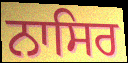
ਨਾਸਿਰ